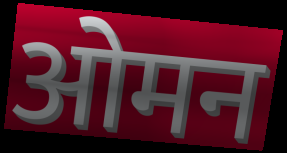
ओमन